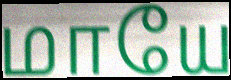
மாயே